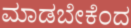
ಮಾಡಬೇಕೆಂದ